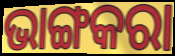
ଭାଙ୍ଗକରା